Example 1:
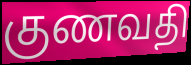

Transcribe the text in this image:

குணவதி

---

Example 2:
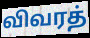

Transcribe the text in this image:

விவரத்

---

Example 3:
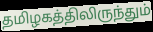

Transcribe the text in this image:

தமிழகத்திலிருந்தும்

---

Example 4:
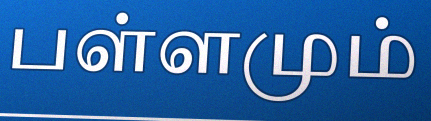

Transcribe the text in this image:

பள்ளமும்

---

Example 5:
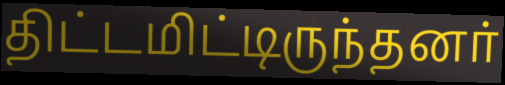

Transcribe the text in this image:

திட்டமிட்டிருந்தனர்